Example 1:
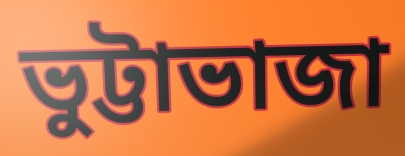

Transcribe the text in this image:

ভুট্টাভাজা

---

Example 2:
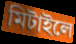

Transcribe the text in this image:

মিটাইলে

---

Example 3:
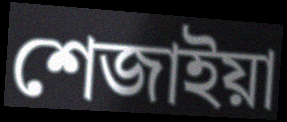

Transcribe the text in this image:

শেজাইয়া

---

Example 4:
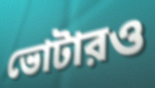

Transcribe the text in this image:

ভোটারও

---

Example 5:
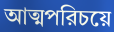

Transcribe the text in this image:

আত্মপরিচয়ে